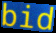
bid